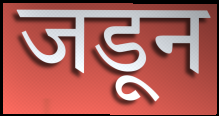
जडून